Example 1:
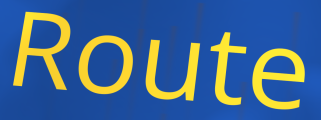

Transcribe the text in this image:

Route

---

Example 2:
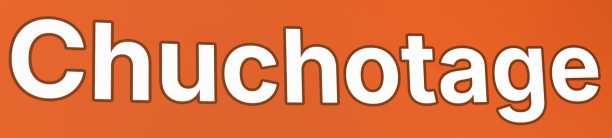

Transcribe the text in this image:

Chuchotage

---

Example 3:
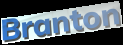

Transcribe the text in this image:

Branton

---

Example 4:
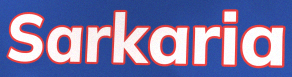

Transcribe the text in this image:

Sarkaria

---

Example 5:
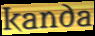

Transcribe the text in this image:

kanda